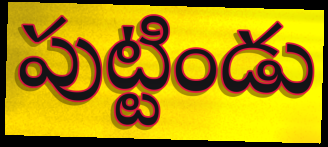
పుట్టిండు